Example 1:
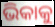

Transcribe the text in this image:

ଭିକାକୁ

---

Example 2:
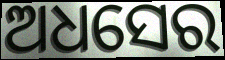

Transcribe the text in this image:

ଅଧସେର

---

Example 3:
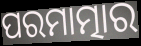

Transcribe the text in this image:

ପରମାତ୍ମାର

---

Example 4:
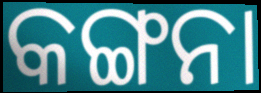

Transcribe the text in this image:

କଙ୍ଗନା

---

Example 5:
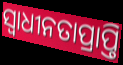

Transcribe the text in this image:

ସ୍ଵାଧୀନତାପ୍ରାପ୍ତି